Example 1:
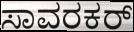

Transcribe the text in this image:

ಸಾವರಕರ್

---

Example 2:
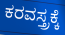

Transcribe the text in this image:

ಕರವಸ್ತ್ರಕ್ಕೆ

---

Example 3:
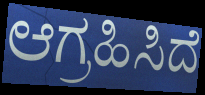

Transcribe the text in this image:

ಆಗ್ರಹಿಸಿದೆ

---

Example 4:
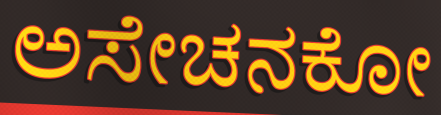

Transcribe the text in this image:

ಅಸೇಚನಕೋ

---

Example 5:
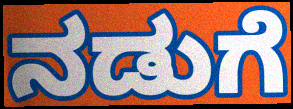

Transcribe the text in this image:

ನಡುಗೆ